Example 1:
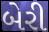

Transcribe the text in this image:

બેરી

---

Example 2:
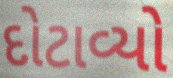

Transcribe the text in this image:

દોટાવ્યો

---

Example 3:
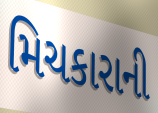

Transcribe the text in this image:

મિચકારાની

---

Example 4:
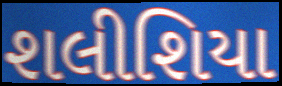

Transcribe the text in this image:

શલીશિયા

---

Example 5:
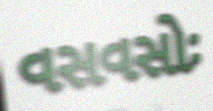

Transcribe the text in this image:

વસવસોઃ